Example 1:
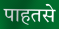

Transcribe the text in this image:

पाहतसे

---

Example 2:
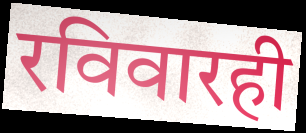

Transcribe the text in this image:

रविवारही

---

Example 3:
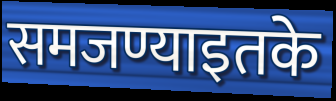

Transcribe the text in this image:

समजण्याइतके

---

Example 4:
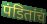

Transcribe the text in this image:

पंडितांचं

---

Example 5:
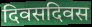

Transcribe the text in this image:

दिवसदिवस